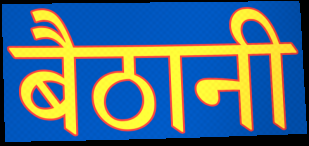
बैठानी